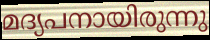
മദ്യപനായിരുന്നു